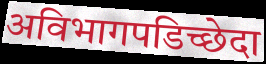
अविभागपडिच्छेदा